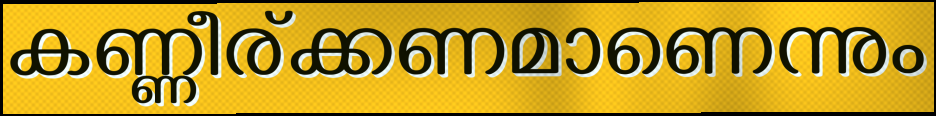
കണ്ണീര്ക്കണമാണെന്നും